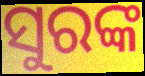
ସୁରଙ୍କ